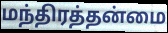
மந்திரத்தன்மை